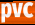
pvc